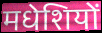
मधेशियों